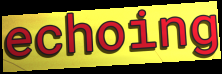
echoing